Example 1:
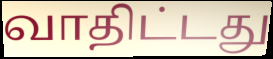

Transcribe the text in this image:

வாதிட்டது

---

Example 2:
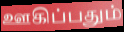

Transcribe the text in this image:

ஊகிப்பதும்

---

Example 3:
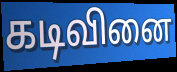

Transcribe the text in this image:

கடிவினை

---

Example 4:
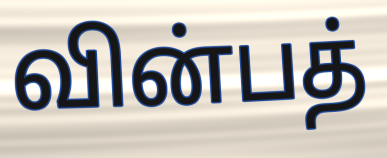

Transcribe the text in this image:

வின்பத்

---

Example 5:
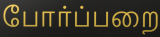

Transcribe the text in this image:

போர்ப்பறை